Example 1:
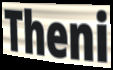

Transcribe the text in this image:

Theni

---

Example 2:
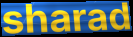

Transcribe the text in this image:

sharad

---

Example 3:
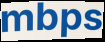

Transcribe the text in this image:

mbps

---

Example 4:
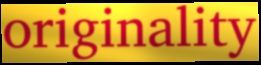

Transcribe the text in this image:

originality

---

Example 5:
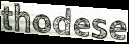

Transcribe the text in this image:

thodese